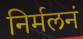
निर्मलनं